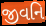
જીવનિ